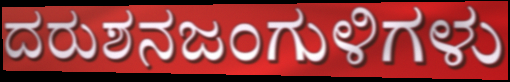
ದರುಶನಜಂಗುಳಿಗಳು